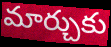
మార్చుకు